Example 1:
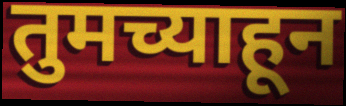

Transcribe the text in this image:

तुमच्याहून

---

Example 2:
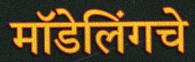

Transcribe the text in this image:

मॉडेलिंगचे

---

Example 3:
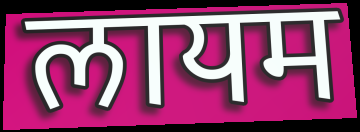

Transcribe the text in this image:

लायम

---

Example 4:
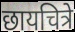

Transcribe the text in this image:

छायचित्रे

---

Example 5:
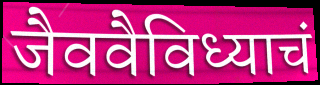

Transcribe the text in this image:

जैववैविध्याचं